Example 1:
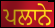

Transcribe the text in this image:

ਪਲਾਨੇ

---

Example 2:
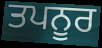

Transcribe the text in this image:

ਤਪਨੂਰ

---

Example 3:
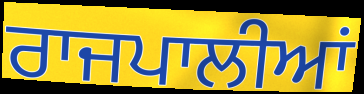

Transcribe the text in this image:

ਰਾਜਪਾਲੀਆਂ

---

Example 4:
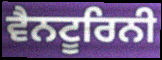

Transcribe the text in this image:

ਵੈਨਟੂਰਿਨੀ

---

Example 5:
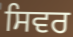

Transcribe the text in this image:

ਸਿਵਰ